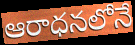
ఆరాధనలోనే